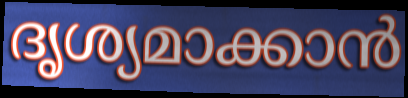
ദൃശ്യമാക്കാൻ